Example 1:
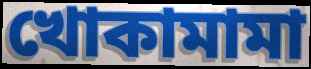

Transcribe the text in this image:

খোকামামা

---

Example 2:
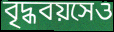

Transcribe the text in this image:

বৃদ্ধবয়সেও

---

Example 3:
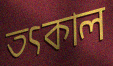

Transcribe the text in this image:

তৎকাল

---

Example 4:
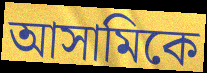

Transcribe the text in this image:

আসামিকে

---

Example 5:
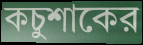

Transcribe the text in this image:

কচুশাকের